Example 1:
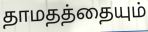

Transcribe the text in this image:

தாமதத்தையும்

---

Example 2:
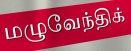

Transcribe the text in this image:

மழுவேந்திக்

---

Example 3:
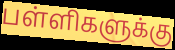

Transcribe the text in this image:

பள்ளிகளுக்கு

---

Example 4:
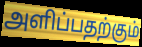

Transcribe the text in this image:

அளிப்பதற்கும்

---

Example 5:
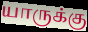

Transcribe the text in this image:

யாருக்கு